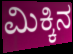
ಮಿಕ್ಕಿನ